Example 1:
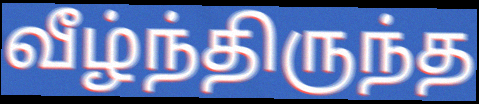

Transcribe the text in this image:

வீழ்ந்திருந்த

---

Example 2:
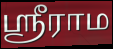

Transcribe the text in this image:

ஸ்ரீராம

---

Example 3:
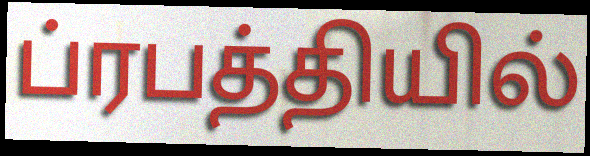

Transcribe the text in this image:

ப்ரபத்தியில்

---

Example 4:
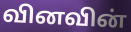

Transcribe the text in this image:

வினவின்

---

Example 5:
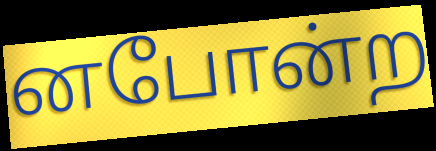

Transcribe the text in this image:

னபோன்ற